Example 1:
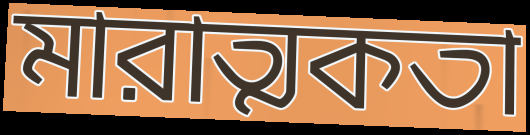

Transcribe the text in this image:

মারাত্মকতা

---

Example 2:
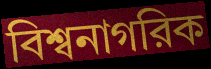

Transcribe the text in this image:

বিশ্বনাগরিক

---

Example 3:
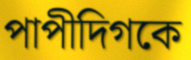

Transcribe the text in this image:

পাপীদিগকে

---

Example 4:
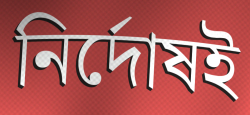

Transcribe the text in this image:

নির্দোষই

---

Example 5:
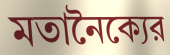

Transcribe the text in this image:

মতানৈক্যের